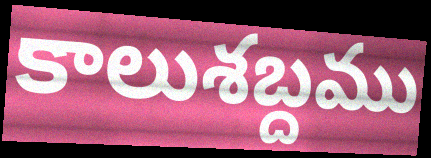
కాలుశబ్దము